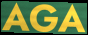
AGA